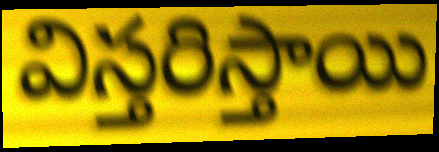
విస్తరిస్తాయి